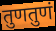
तुणतुणं